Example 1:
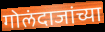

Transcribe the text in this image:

गोलंदाजांच्या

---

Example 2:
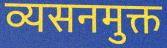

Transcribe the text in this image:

व्यसनमुक्त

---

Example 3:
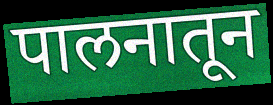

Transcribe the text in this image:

पालनातून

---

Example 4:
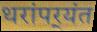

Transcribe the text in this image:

थरांपर्यंत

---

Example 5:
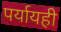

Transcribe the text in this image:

पर्यायही